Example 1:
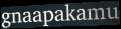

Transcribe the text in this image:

gnaapakamu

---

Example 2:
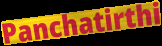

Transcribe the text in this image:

Panchatirthi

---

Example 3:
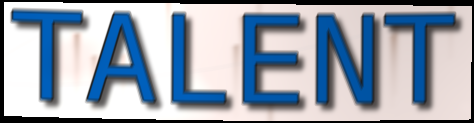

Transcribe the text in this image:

TALENT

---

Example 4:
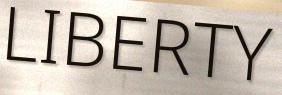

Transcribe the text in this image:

LIBERTY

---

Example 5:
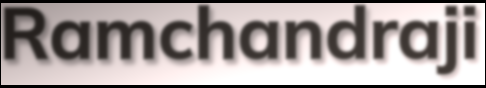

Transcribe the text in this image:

Ramchandraji